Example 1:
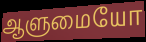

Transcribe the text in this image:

ஆளுமையோ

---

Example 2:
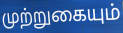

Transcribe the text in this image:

முற்றுகையும்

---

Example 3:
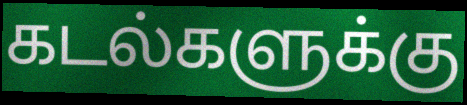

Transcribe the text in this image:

கடல்களுக்கு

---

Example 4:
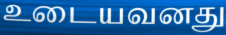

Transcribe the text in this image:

உடையவனது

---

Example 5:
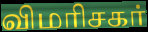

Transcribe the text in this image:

விமரிசகர்